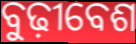
ବୁଢ଼ୀବେଶ